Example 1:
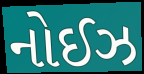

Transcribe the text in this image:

નોઈઝ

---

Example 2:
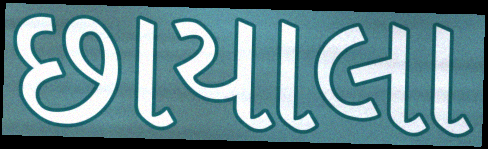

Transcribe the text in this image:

છાયાલા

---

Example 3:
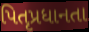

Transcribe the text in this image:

પિતૃપ્રધાનતા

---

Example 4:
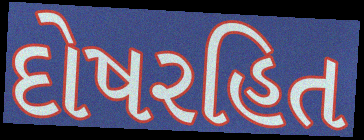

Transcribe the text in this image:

દોષરહિત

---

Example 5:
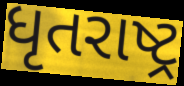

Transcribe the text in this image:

ધૃતરાષ્ટ્ર